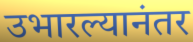
उभारल्यानंतर